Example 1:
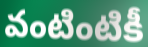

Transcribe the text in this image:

వంటింటికీ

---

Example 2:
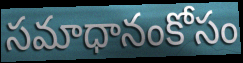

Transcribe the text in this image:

సమాధానంకోసం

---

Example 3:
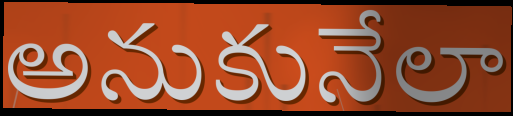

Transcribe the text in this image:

అనుకునేలా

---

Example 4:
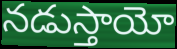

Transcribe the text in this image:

నడుస్తాయో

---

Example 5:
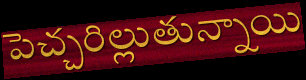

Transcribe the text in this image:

పెచ్చరిల్లుతున్నాయి